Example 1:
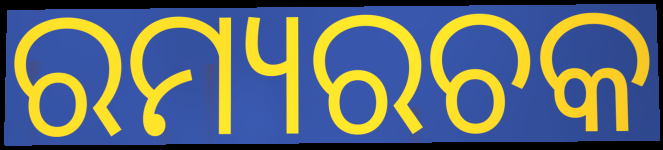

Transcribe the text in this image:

ରମ୍ୟରଚକ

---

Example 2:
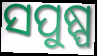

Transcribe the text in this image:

ସପୁଷ୍ପ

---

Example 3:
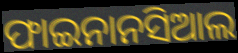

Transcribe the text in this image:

ଫାଇନାନସିଆଲ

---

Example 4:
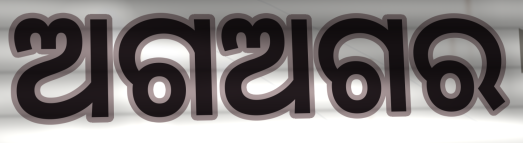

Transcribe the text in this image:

ଅଗଅଗର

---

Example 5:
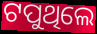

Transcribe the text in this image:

ଟପୁଥିଲେ